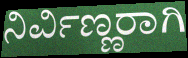
ನಿರ್ವಿಣ್ಣರಾಗಿ